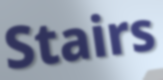
Stairs